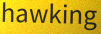
hawking